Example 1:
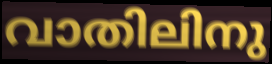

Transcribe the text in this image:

വാതിലിനു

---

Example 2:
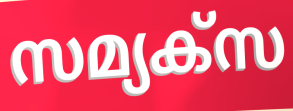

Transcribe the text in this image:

സമ്യക്സ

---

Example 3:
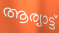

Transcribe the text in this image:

ആര്യാട്ട്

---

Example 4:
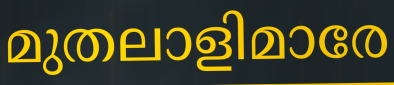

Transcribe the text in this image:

മുതലാളിമാരേ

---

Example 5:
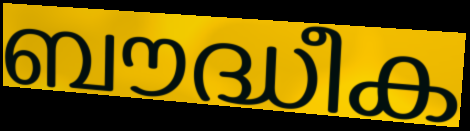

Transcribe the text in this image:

ബൗദ്ധീക